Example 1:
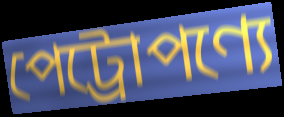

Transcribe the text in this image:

পেট্রোপণ্যে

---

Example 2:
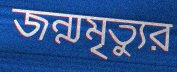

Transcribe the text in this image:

জন্মমৃত্যুর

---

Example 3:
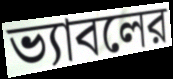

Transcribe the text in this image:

ভ্যাবলের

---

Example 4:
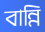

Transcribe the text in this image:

বান্নি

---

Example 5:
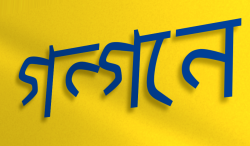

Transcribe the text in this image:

গন্গনে